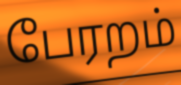
பேரறம்